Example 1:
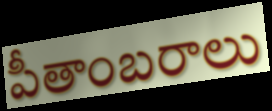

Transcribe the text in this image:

పీతాంబరాలు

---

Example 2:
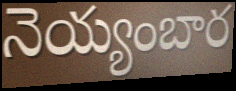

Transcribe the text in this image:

నెయ్యంబార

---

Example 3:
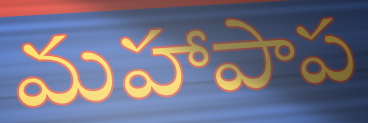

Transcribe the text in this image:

మహాపాప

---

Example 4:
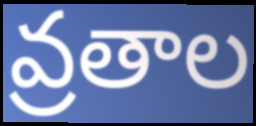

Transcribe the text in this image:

వ్రతాల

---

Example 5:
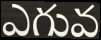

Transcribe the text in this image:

ఎగువ